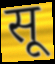
सू